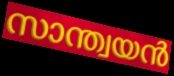
സാന്ത്വയൻ